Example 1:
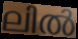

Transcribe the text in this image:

ലിൽ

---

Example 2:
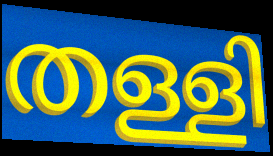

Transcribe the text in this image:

തള്ളി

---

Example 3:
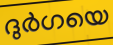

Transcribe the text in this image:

ദുർഗയെ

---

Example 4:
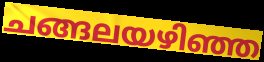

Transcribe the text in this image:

ചങ്ങലയഴിഞ്ഞ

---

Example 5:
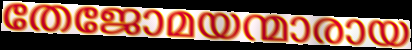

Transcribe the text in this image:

തേജോമയന്മാരായ